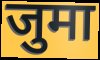
जुमा